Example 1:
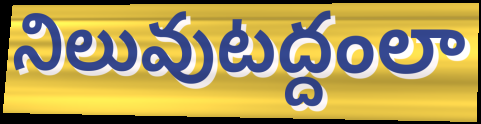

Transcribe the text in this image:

నిలువుటద్దంలా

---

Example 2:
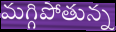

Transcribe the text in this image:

మగ్గిపోతున్న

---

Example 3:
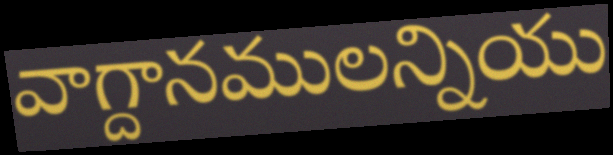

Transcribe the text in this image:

వాగ్దానములన్నియు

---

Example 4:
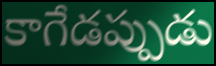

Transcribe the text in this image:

కాగేడప్పుడు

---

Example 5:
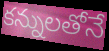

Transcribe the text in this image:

కన్నులతోనే